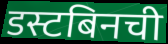
डस्टबिनची